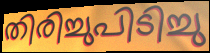
തിരിച്ചുപിടിച്ചു